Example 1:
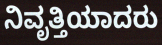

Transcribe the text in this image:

ನಿವೃತ್ತಿಯಾದರು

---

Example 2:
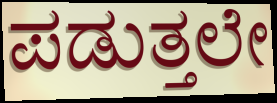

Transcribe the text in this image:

ಪಡುತ್ತಲೇ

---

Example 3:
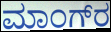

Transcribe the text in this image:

ಮಾಂಗ್‌ರ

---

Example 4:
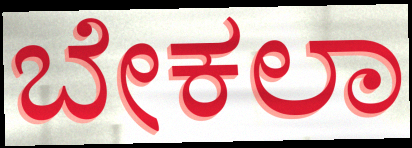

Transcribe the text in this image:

ಬೇಕಲಾ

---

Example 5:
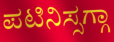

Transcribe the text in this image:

ಪಟಿನಿಸ್ಸಗ್ಗಾ